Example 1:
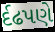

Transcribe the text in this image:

ર્દઢપણે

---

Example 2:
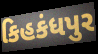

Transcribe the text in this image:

કિહકંધપુર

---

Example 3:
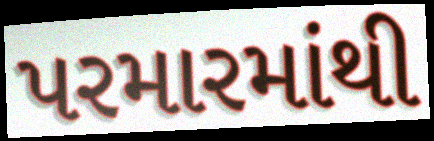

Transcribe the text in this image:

પરમારમાંથી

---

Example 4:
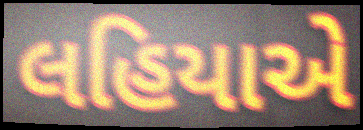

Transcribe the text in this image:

લહિયાએ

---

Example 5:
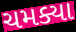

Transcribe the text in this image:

ચમક્યા